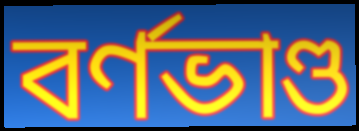
বর্ণভাণ্ড